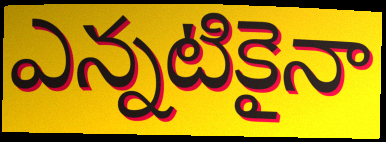
ఎన్నటికైనా